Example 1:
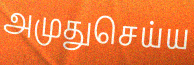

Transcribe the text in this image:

அமுதுசெய்ய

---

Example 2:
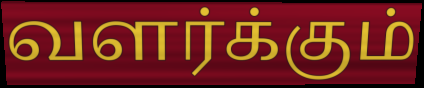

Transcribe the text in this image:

வளர்க்கும்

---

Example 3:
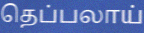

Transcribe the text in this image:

தெப்பலாய்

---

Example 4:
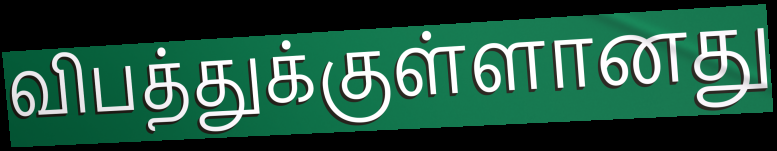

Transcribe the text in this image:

விபத்துக்குள்ளானது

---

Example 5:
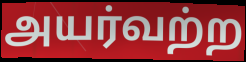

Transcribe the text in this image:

அயர்வற்ற